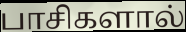
பாசிகளால்